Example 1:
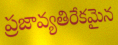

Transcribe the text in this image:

ప్రజావ్యతిరేకమైన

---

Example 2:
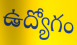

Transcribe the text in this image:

ఉద్యోగం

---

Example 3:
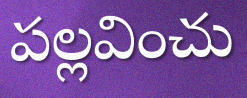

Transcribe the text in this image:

పల్లవించు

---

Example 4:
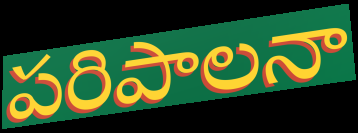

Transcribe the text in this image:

పరిపాలనా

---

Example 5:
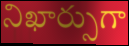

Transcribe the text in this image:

నిఖార్సుగా